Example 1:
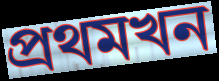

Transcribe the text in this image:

প্ৰথমখন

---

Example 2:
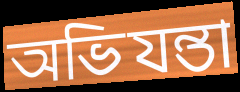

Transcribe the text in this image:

অভিযন্তা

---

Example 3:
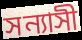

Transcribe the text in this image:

সন্যাসী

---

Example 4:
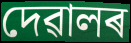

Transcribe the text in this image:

দেৱালৰ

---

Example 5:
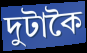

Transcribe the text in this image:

দুটাকৈ